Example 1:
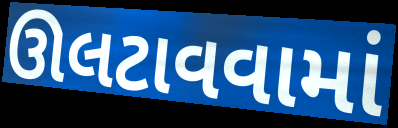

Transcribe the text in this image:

ઊલટાવવામાં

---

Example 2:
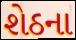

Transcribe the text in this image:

શેઠના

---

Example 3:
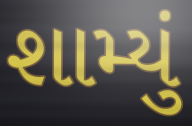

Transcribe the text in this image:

શામ્યું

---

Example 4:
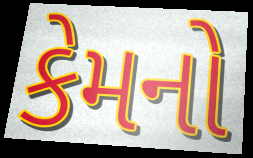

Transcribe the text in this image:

કેમનો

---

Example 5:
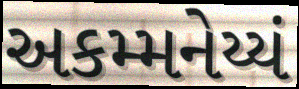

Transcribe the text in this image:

અકમ્મનેય્યં